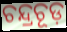
ଚନ୍ଦ୍ରଚୂଡ଼